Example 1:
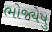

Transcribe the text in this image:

ભોજ્યેષુ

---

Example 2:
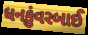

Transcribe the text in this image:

ધનકુંવરબાઈ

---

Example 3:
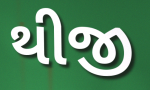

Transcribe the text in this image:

થીજી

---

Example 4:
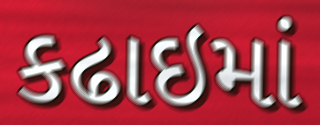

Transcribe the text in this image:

કઢાઇમાં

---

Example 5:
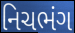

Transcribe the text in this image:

નિચભંગ